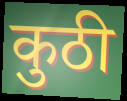
कुठी